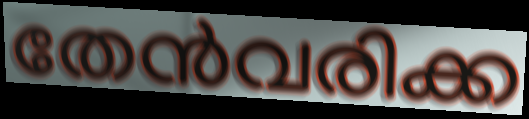
തേൻവരിക്ക